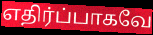
எதிர்ப்பாகவே